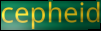
cepheid